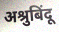
अश्रुबिंदू